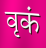
वृकं